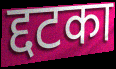
द्दटका